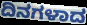
ದಿನಗಳಾದ